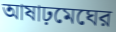
আষাঢ়মেঘের